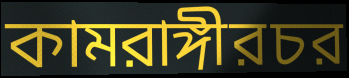
কামরাঙ্গীরচর